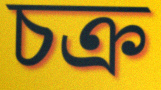
চক্র